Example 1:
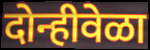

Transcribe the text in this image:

दोन्हीवेळा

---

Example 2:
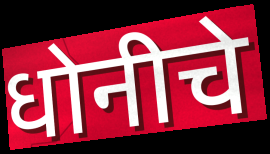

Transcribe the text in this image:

धोनीचे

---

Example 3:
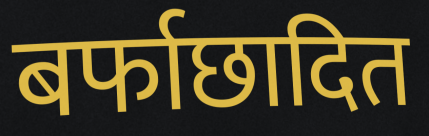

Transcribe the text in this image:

बर्फाछादित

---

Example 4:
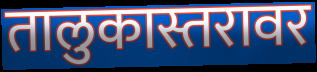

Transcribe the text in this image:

तालुकास्तरावर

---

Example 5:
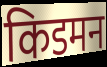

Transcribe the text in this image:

किडमन